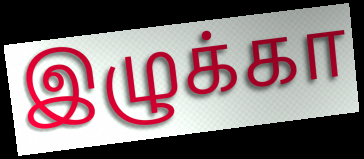
இழுக்கா